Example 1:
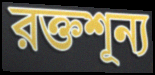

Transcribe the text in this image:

রক্তশূন্য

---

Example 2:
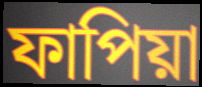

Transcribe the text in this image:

ফাপিয়া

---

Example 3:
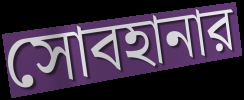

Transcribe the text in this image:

সোবহানার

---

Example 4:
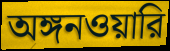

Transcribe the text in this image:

অঙ্গনওয়ারি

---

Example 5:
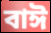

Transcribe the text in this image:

বাঈ